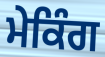
ਮੇਕਿੰਗ